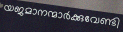
യജമാനന്മാർക്കുവേണ്ടി